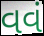
વવં